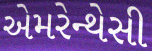
એમરેન્થેસી